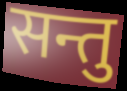
सन्‍तु